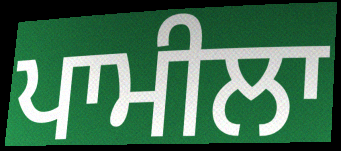
ਪਾਮੀਲਾ